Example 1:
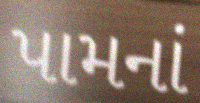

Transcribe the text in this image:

પામનાં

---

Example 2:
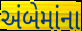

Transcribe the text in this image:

અંબેમાંના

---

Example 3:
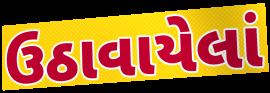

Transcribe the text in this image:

ઉઠાવાયેલાં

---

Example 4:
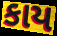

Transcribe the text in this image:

કાય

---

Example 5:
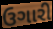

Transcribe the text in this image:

ઉગારી